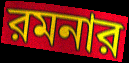
রমনার